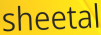
sheetal